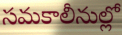
సమకాలీనుల్లో